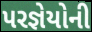
પરજ્ઞેયોની